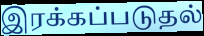
இரக்கப்படுதல்